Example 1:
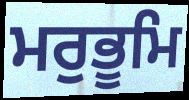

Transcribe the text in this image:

ਮਰੁਭੂਮਿ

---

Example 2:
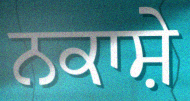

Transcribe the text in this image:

ਨਕਾਸ਼ੇ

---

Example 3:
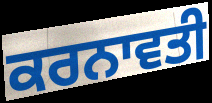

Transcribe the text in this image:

ਕਰਨਾਵਤੀ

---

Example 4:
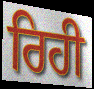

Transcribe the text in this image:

ਰਿਹੀ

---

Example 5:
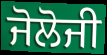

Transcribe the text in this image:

ਜੋਲੋਜੀ